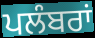
ਪਲੰਬਰਾਂ